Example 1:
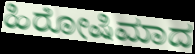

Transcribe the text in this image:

ಹಿರೋಷಿಮಾದ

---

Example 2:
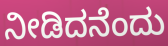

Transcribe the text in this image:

ನೀಡಿದನೆಂದು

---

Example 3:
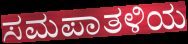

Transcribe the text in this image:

ಸಮಪಾತಳಿಯ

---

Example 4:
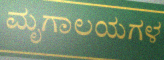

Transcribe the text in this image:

ಮೃಗಾಲಯಗಳ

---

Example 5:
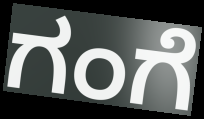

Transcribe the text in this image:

ಗಂಗೆ